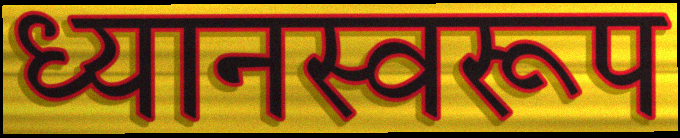
ध्यानस्वरूप